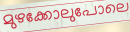
മുഴക്കോലുപോലെ